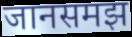
जानसमझ